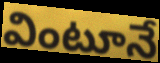
వింటూనే